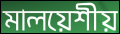
মালয়েশীয়